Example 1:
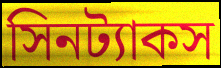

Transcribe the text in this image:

সিনট্যাকস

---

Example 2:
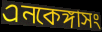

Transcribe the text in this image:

এনকেঙ্গাসং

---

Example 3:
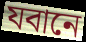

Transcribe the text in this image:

যবানে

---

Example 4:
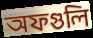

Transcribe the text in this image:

অফগুলি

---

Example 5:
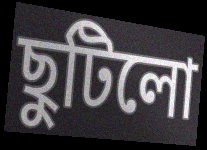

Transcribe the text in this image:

ছুটিলো